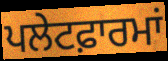
ਪਲੇਟਫ਼ਾਰਮਾਂ